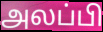
அலப்பி